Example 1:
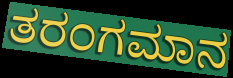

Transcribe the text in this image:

ತರಂಗಮಾನ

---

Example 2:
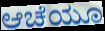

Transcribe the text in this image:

ಆಚೆಯೂ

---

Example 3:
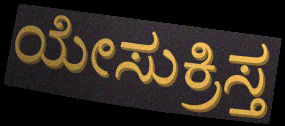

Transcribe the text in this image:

ಯೇಸುಕ್ರಿಸ್ತ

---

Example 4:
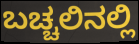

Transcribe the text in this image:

ಬಚ್ಚಲಿನಲ್ಲಿ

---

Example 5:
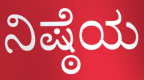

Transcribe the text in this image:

ನಿಷ್ಠೆಯ